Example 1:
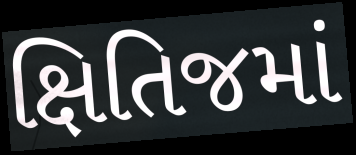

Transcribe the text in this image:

ક્ષિતિજમાં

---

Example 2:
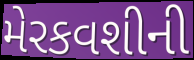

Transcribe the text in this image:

મેરકવશીની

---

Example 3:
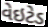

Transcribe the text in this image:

વેઇટેડ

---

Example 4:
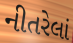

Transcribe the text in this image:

નીતરેલાં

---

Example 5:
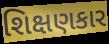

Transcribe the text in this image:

શિક્ષણકાર